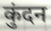
कुंदन